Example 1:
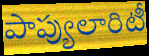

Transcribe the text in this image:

పాప్యులారిటీ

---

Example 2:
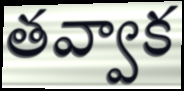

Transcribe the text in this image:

తవ్వాక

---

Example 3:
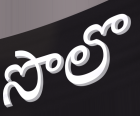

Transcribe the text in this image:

సొలొ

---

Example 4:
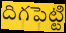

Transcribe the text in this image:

దిగపెట్టి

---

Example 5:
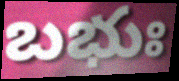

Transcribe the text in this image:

బభుః